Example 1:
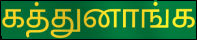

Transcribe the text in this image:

கத்துனாங்க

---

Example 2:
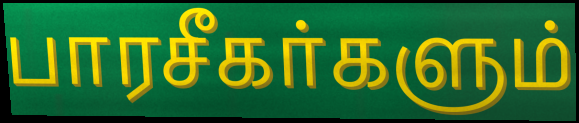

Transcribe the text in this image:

பாரசீகர்களும்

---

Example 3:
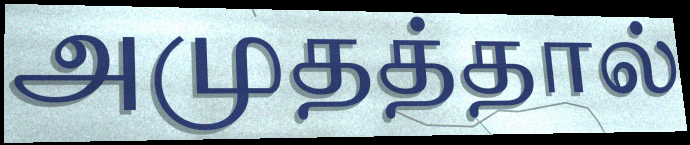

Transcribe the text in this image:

அமுதத்தால்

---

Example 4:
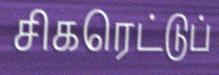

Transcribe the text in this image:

சிகரெட்டுப்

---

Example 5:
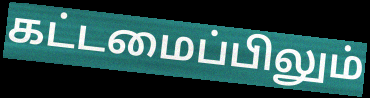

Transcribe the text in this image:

கட்டமைப்பிலும்